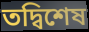
তদ্বিশেষ